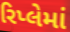
રિપ્લેમાં